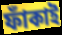
ফাঁকাই